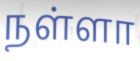
நள்ளா